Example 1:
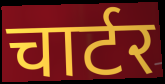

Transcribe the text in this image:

चार्टर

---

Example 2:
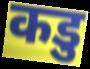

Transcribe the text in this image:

कडु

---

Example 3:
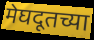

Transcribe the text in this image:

मेघदूतच्या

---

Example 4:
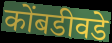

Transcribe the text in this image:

कोंबडीवडे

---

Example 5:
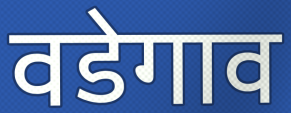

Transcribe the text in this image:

वडेगाव